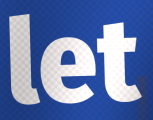
let